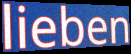
lieben